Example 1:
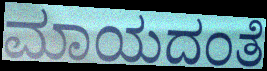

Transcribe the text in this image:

ಮಾಯದಂತೆ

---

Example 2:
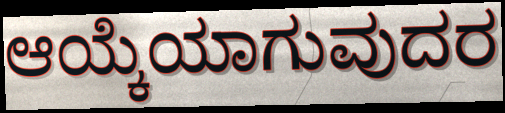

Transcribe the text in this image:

ಆಯ್ಕೆಯಾಗುವುದರ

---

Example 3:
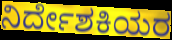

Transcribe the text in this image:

ನಿರ್ದೇಶಕಿಯರ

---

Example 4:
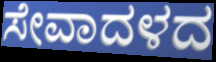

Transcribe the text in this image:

ಸೇವಾದಳದ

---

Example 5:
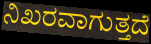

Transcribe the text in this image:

ನಿಖರವಾಗುತ್ತದೆ